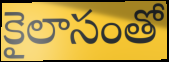
కైలాసంతో